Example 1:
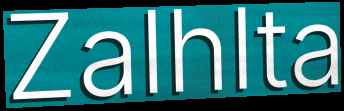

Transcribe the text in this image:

Zalhlta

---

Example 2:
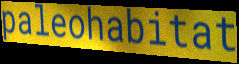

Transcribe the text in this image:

paleohabitat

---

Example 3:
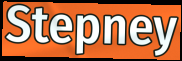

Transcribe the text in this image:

Stepney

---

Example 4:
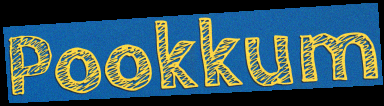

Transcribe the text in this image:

Pookkum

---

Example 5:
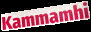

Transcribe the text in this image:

Kammamhi